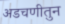
अडचणीतुन